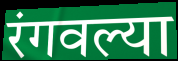
रंगवल्या